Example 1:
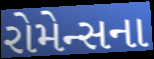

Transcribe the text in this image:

રોમેન્સના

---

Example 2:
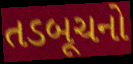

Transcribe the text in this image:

તડબૂચનો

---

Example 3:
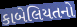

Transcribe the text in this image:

કાબેલિયતનો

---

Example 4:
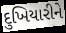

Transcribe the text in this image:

દુખિયારીને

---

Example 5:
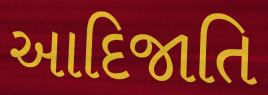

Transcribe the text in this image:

આદિજાતિ